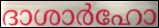
ദാശാർഹോ